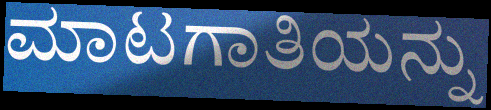
ಮಾಟಗಾತಿಯನ್ನು